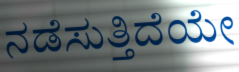
ನಡೆಸುತ್ತಿದೆಯೇ